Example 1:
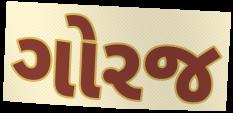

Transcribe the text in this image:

ગોરજ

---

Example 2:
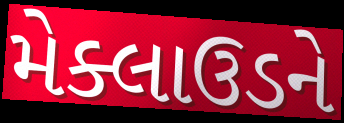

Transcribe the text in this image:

મેક્લાઉડને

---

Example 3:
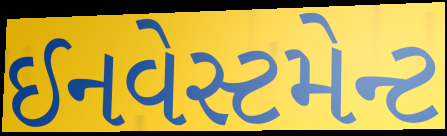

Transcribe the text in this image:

ઈનવેસ્ટમેન્ટ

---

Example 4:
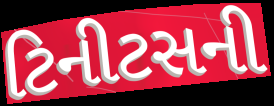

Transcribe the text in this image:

ટિનીટસની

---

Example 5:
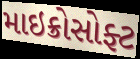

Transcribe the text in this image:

માઇક્રોસોફ્ટ